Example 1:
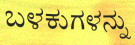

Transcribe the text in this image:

ಬಳಕುಗಳನ್ನು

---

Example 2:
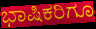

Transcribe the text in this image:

ಭಾಷಿಕರಿಗೂ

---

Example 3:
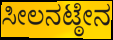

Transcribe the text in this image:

ಸೀಲನಟ್ಠೇನ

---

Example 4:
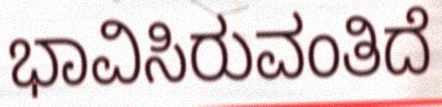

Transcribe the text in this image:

ಭಾವಿಸಿರುವಂತಿದೆ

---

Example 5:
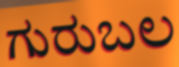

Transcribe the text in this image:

ಗುರುಬಲ